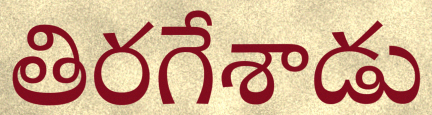
తిరగేశాడు